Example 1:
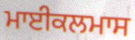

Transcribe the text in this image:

ਮਾਈਕਲਮਾਸ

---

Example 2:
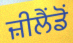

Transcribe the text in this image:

ਜ਼ੀਲੈਂਡੋਂ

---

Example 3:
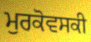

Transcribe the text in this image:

ਮੁਰਕੋਵਸਕੀ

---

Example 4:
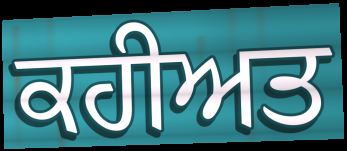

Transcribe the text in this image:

ਕਹੀਅਤ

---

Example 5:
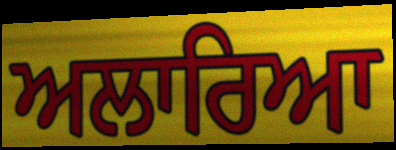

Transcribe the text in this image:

ਅਲਾਰਿਆ